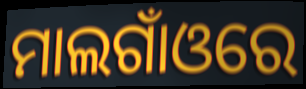
ମାଲଗାଁଓରେ